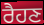
ਰੈਹਣ